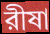
রীষা